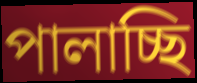
পালাচ্ছি